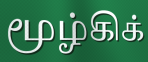
மூழ்கிக்